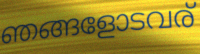
ഞങ്ങളോടവര്